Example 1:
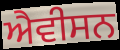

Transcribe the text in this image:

ਐਵੀਸਨ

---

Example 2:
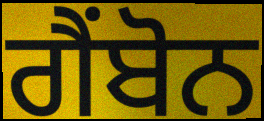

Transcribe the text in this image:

ਗੈਂਬੋਨ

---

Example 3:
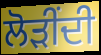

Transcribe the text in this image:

ਲੋੜੀਂਦੀ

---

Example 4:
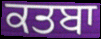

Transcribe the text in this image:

ਕਤਬਾ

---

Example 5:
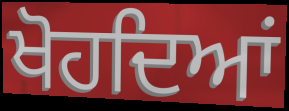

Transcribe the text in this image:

ਖੋਹਦਿਆਂ